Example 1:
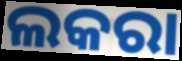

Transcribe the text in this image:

ଲକରା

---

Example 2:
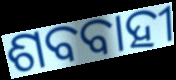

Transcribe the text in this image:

ଶବବାହୀ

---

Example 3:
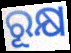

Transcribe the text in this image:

ରୂକ୍ଷ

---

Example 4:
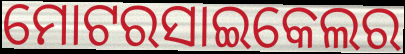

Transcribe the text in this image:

ମୋଟରସାଇକେଲର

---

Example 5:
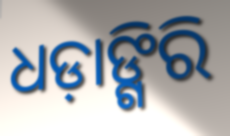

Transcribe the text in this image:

ଧଡ଼ାଙ୍ଗିରି